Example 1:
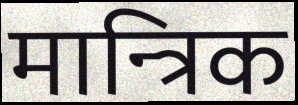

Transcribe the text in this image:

मान्त्रिक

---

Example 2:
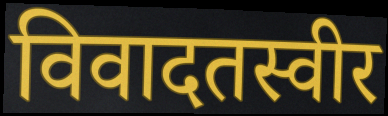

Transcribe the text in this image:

विवादतस्वीर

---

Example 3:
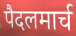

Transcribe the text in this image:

पैदलमार्च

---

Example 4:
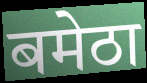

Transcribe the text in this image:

बमेठा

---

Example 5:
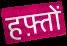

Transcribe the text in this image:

हफ़्तों